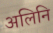
अलिनि